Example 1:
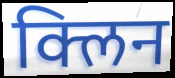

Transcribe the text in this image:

क्लिन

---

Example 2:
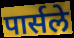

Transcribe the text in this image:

पार्सले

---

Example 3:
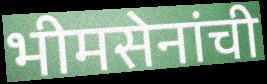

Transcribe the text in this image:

भीमसेनांची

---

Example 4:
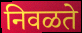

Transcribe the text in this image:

निवळते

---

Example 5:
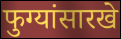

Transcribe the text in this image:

फुग्यांसारखे